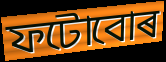
ফটোবোৰ